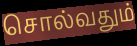
சொல்வதும்